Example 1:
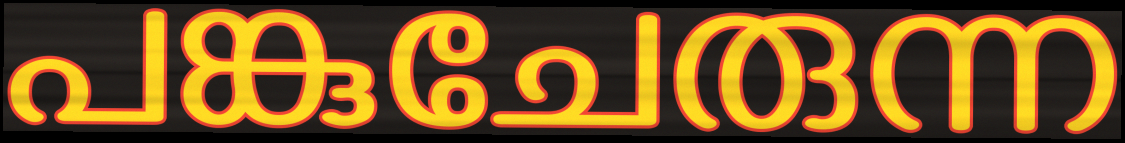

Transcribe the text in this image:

പങ്കുചേരുന്ന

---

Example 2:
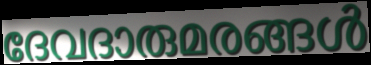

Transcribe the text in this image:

ദേവദാരുമരങ്ങൾ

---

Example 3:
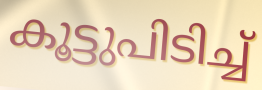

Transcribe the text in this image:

കൂട്ടുപിടിച്ച്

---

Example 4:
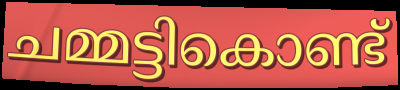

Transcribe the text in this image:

ചമ്മട്ടികൊണ്ട്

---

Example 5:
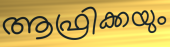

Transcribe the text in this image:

ആഫ്രിക്കയും